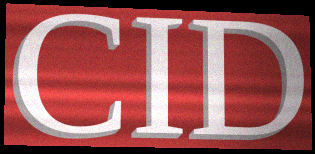
CID